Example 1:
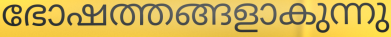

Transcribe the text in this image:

ഭോഷത്തങ്ങളാകുന്നു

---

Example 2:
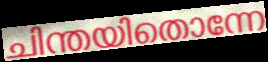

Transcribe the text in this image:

ചിന്തയിതൊന്നേ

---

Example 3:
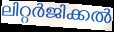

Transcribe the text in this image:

ലിറ്റർജിക്കൽ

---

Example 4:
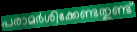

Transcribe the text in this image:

പരാമർശിക്കേണ്ടതുണ്ട്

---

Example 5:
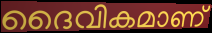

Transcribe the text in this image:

ദൈവികമാണ്